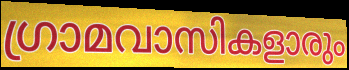
ഗ്രാമവാസികളാരും